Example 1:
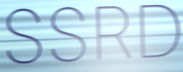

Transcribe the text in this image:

SSRD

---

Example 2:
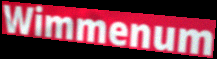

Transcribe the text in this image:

Wimmenum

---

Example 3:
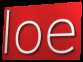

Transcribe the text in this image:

Ioe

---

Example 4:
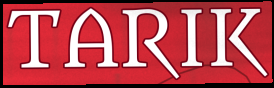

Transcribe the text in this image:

TARIK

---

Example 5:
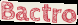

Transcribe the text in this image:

Bactro